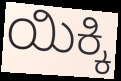
ಯಿಕ್ಕಿ